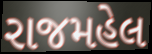
રાજમહેલ